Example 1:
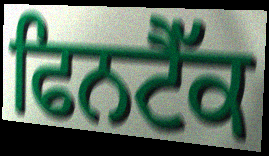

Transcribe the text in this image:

ਫਿਨਟੈੱਕ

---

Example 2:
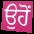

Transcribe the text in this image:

ਉਹੋਂ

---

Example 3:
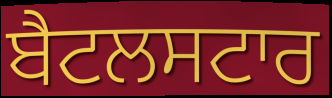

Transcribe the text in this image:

ਬੈਟਲਸਟਾਰ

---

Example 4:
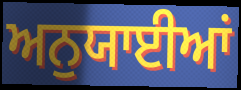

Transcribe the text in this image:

ਅਨੁਯਾਈਆਂ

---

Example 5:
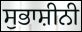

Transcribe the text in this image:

ਸੁਭਾਸ਼ੀਨੀ